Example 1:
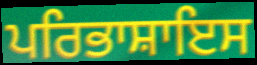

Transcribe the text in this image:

ਪਰਿਭਾਸ਼ਾਇਸ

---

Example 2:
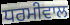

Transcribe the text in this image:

ਧਰਮੀਵਾਲ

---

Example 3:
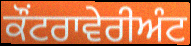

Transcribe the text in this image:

ਕੌਂਟਰਾਵੇਰੀਅੰਟ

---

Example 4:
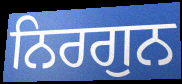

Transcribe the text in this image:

ਨਿਰਗੁਨ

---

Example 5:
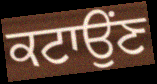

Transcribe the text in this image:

ਕਟਾਉਂਣ